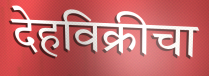
देहविक्रीचा